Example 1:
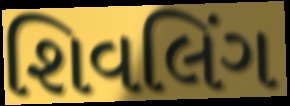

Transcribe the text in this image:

શિવલિંગ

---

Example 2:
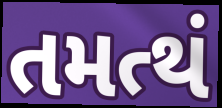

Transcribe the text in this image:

તમત્થં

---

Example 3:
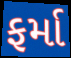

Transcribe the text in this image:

ફર્મા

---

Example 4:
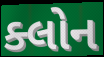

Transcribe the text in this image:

ક્લોન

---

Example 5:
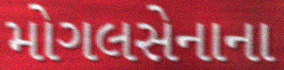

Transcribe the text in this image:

મોગલસેનાના